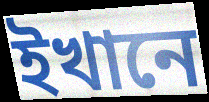
ইখানে